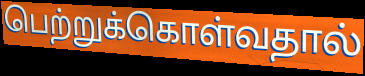
பெற்றுக்கொள்வதால்